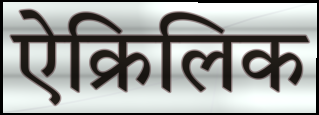
ऐक्रिलिक